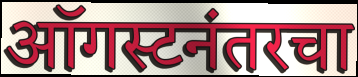
ऑगस्टनंतरचा